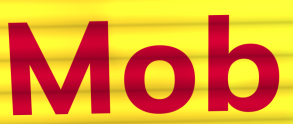
Mob